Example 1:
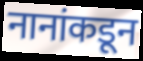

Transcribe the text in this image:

नानांकडून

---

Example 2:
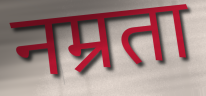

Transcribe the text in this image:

नम्रता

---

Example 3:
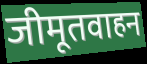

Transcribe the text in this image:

जीमूतवाहन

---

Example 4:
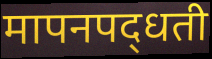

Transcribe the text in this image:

मापनपद्धती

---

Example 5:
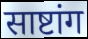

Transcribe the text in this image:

साष्टांग